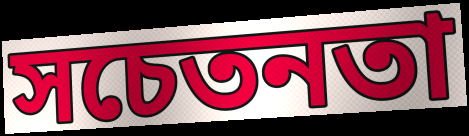
সচেতনতা